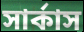
সার্কাস